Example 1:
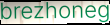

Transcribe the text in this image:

brezhoneg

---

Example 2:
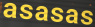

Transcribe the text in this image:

asasas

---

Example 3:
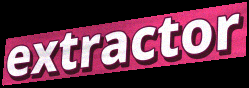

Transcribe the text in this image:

extractor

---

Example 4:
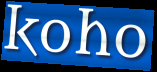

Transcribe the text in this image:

koho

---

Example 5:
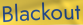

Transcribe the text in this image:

Blackout